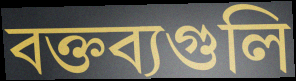
বক্তব্যগুলি